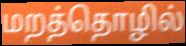
மறத்தொழில்